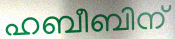
ഹബീബിന്